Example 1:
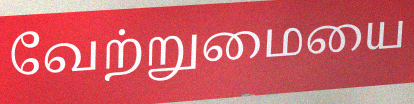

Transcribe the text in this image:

வேற்றுமையை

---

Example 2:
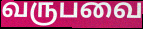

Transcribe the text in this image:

வருபவை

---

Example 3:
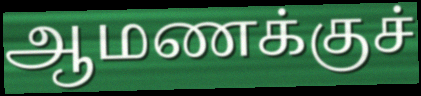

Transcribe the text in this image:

ஆமணக்குச்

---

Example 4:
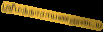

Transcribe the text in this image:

ஸ்ரீமந்நாராயணனுடைய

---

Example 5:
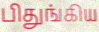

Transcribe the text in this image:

பிதுங்கிய